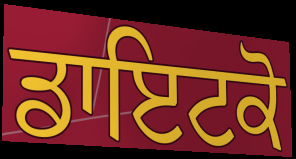
ਡਾਇਟਕੋ